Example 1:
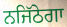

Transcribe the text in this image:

ਨਜਿੱਠੇਗਾ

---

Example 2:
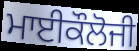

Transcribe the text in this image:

ਮਾਈਕੌਲੋਜੀ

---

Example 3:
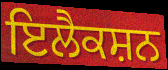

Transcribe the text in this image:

ਇਲੈਕਸ਼ਨ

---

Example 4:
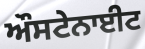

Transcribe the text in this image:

ਔਸਟੇਨਾਈਟ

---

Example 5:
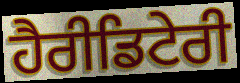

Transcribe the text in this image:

ਹੈਰੀਡਿਟੇਰੀ